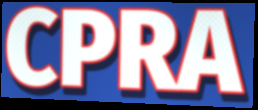
CPRA